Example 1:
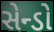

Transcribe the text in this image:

સેન્ડો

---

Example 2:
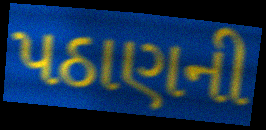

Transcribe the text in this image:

પઠાણની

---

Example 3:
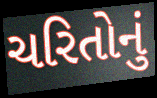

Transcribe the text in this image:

ચરિતોનું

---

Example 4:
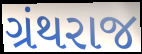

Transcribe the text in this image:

ગ્રંથરાજ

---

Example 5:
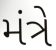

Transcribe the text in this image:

મંત્રે